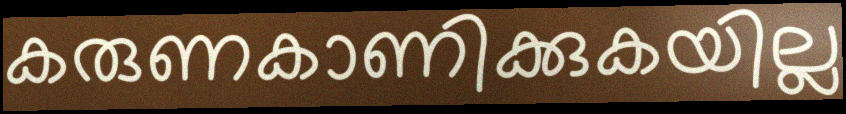
കരുണകാണിക്കുകയില്ല